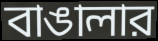
বাঙালার